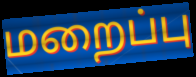
மறைப்பு